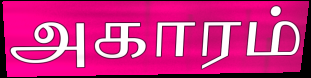
அகாரம்